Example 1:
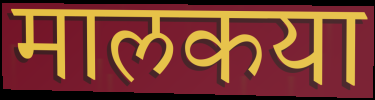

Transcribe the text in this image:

मालकया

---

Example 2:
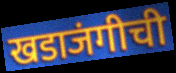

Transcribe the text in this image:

खडाजंगीची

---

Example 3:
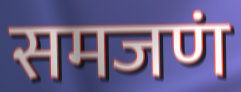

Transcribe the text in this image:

समजणं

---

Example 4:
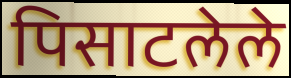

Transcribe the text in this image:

पिसाटलेले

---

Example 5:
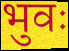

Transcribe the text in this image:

भुवः